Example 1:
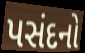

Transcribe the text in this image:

પસંદનો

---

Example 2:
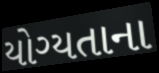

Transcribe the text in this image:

યોગ્યતાના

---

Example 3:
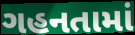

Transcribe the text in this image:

ગહનતામાં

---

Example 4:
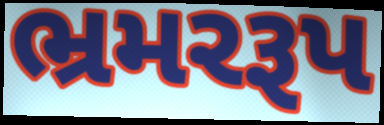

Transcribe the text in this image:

ભ્રમરરૂપ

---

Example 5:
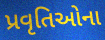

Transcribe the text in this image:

પ્રવૃતિઓના